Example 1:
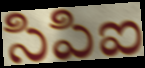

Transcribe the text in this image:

సిపిఐ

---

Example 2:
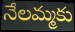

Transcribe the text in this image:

నేలమ్మకు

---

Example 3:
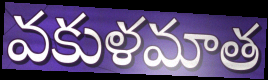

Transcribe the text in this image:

వకుళమాత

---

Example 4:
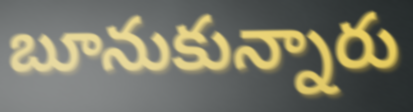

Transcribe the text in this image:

బూనుకున్నారు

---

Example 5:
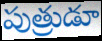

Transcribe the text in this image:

పుత్రుడూ